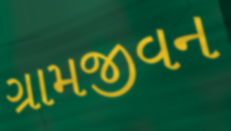
ગ્રામજીવન